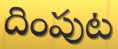
దింపుట